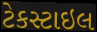
ટેકસ્ટાઇલ